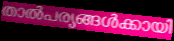
താൽപര്യങ്ങൾക്കായി